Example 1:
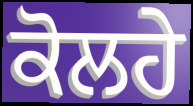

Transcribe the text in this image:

ਕੋਲਹੇ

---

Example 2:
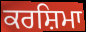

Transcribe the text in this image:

ਕਰਸ਼ਿਮਾ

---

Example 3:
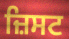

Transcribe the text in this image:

ਜ਼ਿਸਟ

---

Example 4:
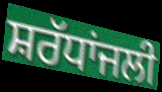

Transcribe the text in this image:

ਸ਼ਰੱਧਾਂਜਲੀ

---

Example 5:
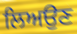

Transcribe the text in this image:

ਲਿਅਉਣ